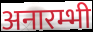
अनारम्भी